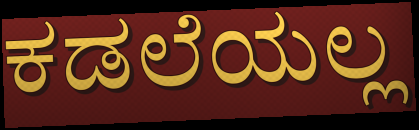
ಕಡಲೆಯಲ್ಲ